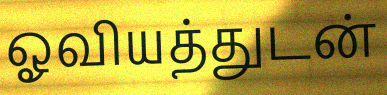
ஓவியத்துடன்